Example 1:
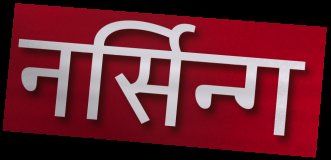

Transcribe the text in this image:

नर्सिन्ग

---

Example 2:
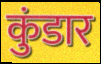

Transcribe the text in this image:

कुंडार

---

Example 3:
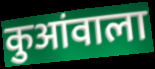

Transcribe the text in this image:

कुआंवाला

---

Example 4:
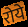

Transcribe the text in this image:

रोये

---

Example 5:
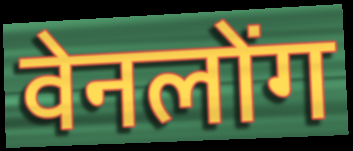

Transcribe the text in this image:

वेनलोंग